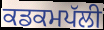
ਕਡਕਮਪੱਲੀ